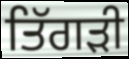
ਤਿੱਗੜੀ